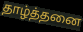
தாழ்த்தனை